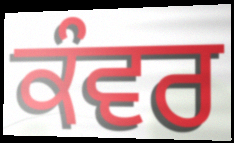
ਕੰਵਰ